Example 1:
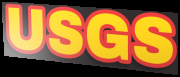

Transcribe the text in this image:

USGS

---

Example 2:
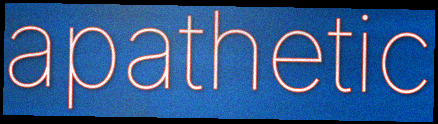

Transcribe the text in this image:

apathetic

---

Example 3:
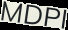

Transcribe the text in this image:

MDPI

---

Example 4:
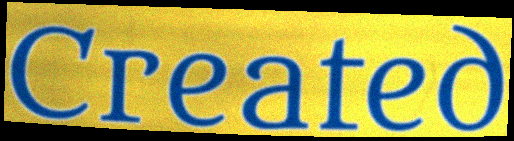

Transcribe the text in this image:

Created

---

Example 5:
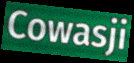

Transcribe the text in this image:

Cowasji